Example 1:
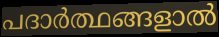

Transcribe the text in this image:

പദാർത്ഥങ്ങളാൽ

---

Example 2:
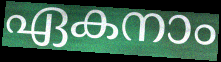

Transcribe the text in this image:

ഏകനാം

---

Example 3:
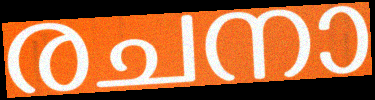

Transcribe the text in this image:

രചനാ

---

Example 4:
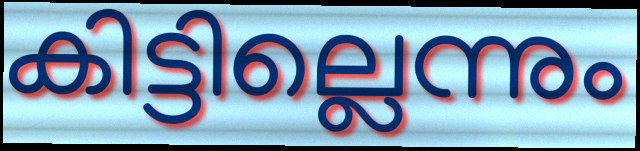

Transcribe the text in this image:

കിട്ടില്ലെന്നും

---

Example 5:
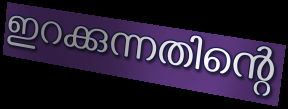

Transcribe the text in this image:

ഇറക്കുന്നതിന്റെ